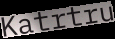
Katrtru